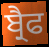
ਬ੍ਰੈਫ